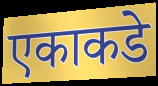
एकाकडे